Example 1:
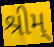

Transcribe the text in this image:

શ્રીમ્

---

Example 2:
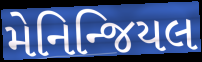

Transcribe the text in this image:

મેનિન્જિયલ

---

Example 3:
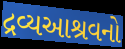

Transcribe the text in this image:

દ્રવ્યઆશ્રવનો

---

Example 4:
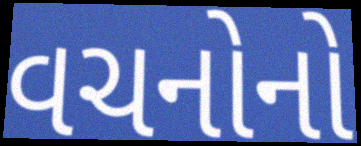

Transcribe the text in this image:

વચનોનો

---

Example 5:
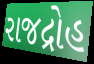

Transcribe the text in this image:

રાજદ્રોહ